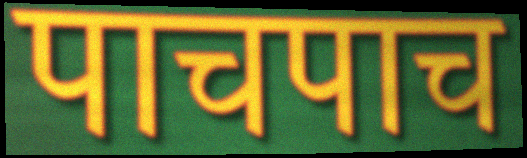
पाचपाच